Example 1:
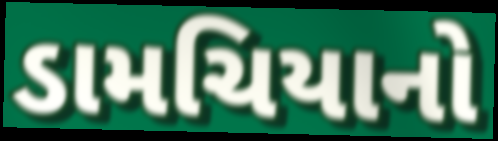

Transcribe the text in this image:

ડામચિયાનો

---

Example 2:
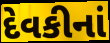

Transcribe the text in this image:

દેવકીનાં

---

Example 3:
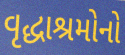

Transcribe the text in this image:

વૃદ્ધાશ્રમોનો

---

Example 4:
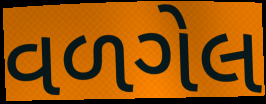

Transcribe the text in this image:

વળગેલ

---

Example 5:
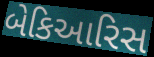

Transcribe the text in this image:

બેકિઆરિસ